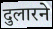
दुलारने